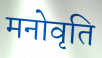
मनोवृति